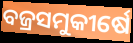
ବଜ୍ରସମୁକୀର୍ଷେ